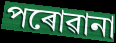
পৰোৱানা